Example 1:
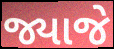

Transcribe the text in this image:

જ્યાજે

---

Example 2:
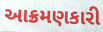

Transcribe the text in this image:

આક્રમણકારી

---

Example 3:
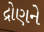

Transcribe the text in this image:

દ્રોણને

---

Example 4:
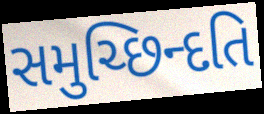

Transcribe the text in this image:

સમુચ્છિન્દતિ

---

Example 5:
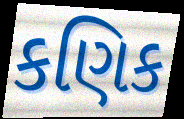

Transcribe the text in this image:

કણિક